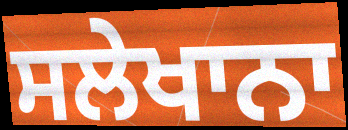
ਸਲੇਖਾਨਾ